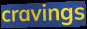
cravings